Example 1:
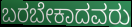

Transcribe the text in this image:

ಬರಬೇಕಾದವರು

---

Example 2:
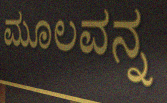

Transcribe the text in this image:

ಮೂಲವನ್ನ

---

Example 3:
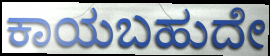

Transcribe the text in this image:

ಕಾಯಬಹುದೇ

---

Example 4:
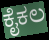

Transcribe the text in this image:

ಕೈಕಲ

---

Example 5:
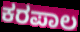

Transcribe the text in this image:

ಕರಪಾಲ